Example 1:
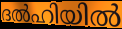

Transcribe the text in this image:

ദൽഹിയിൽ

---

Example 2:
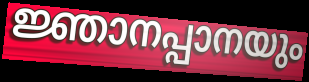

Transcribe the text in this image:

ജ്ഞാനപ്പാനയും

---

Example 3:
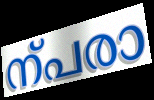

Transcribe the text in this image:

ന്പരാ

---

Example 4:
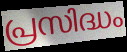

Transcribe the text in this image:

പ്രസിദ്ധം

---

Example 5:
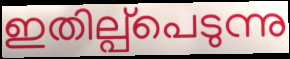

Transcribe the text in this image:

ഇതില്പ്പെടുന്നു